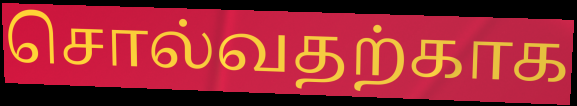
சொல்வதற்காக